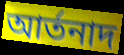
আর্তনাদ